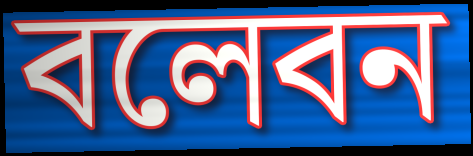
বলেবন